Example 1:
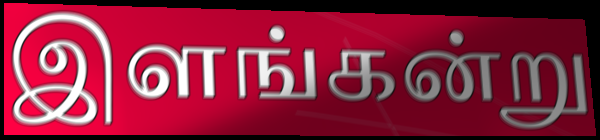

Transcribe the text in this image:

இளங்கன்று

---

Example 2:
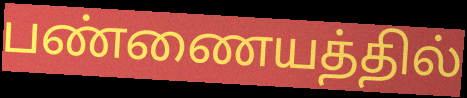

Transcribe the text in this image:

பண்ணையத்தில்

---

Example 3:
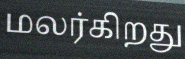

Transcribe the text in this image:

மலர்கிறது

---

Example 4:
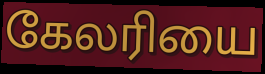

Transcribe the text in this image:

கேலரியை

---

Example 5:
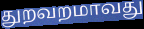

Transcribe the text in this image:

துறவறமாவது